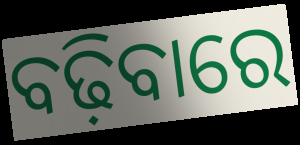
ବଢ଼ିବାରେ